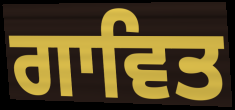
ਗਾਵਿਤ